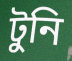
টুনি